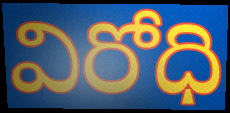
విరోధి